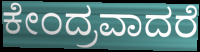
ಕೇಂದ್ರವಾದರೆ